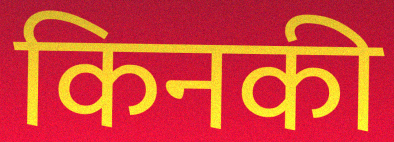
किनकी